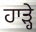
ਹਾੜ੍ਹੇ